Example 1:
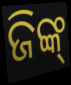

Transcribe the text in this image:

ଜିଙ୍କ୍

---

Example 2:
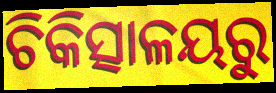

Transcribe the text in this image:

ଚିକିତ୍ସାଳୟରୁ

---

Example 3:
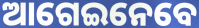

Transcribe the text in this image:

ଆଗେଇନେବେ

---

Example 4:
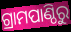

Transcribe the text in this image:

ଗ୍ରାମପାଣ୍ଠିରୁ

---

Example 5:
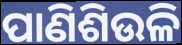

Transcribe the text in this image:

ପାଣିଶିଉଳି